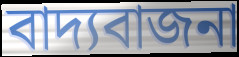
বাদ্যবাজনা